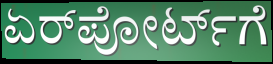
ಏರ್‌ಪೋರ್ಟ್‌ಗೆ